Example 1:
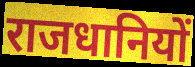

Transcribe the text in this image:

राजधानियों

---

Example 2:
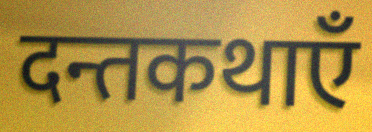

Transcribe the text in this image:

दन्तकथाएँ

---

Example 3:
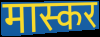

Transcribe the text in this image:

मास्कर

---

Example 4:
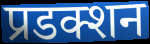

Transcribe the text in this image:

प्रडक्शन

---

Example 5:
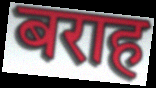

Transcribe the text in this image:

बराह